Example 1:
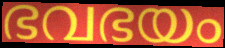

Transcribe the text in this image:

ഭവഭയം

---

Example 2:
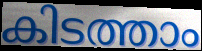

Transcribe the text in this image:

കിടത്താം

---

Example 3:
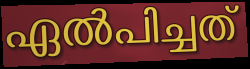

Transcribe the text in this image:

ഏൽപിച്ചത്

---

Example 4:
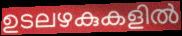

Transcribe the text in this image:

ഉടലഴകുകളിൽ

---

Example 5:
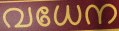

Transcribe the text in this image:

വധേന